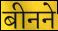
बीनने